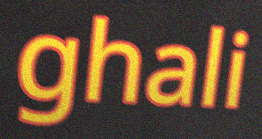
ghali